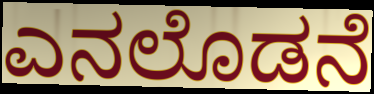
ಎನಲೊಡನೆ